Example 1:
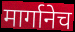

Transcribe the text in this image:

मार्गानेच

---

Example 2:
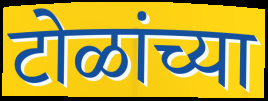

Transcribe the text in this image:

टोळांच्या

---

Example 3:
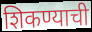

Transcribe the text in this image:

शिकण्याची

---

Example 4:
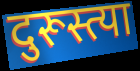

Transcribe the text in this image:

दुरूस्त्या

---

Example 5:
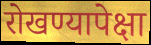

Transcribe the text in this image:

रोखण्यापेक्षा